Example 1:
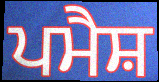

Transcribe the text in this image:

ਪਮੈਸ਼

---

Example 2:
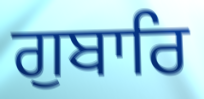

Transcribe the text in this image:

ਗੁਬਾਰਿ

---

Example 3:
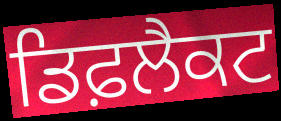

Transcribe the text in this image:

ਡਿਫ਼ਲੈਕਟ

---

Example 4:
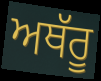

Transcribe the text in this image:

ਅਥੱਰੂ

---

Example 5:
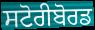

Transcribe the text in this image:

ਸਟੋਰੀਬੋਰਡ